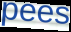
pees